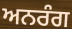
ਅਨਰੰਗ